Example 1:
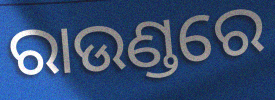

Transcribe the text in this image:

ରାଉଣ୍ଡରେ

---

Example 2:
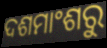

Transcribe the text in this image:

ଦଶମାଂଶରୁ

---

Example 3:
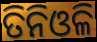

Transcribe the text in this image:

ତିନିଓଳି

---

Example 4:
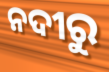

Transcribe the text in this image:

ନଦୀରୁ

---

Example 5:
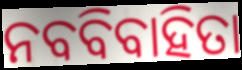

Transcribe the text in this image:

ନବବିବାହିତା